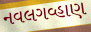
નવલગવ્હાણ